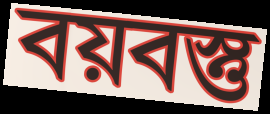
বয়বস্তু